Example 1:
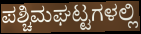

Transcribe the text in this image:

ಪಶ್ಚಿಮಘಟ್ಟಗಳಲ್ಲಿ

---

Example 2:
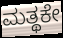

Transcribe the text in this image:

ಮತ್ಥಕೇ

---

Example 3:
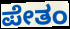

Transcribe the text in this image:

ಪೇತಂ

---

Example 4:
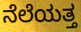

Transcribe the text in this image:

ನೆಲೆಯತ್ತ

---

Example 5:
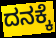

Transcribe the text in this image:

ದನಕ್ಕೆ